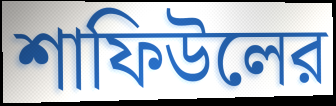
শাফিউলের